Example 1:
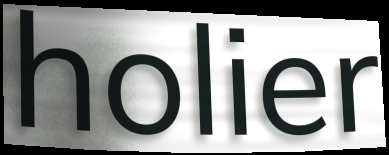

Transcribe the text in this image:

holier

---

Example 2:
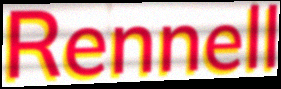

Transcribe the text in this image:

Rennell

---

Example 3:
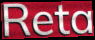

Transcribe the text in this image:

Reta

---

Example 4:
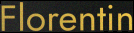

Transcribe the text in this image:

Florentin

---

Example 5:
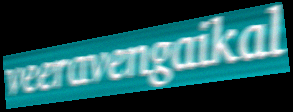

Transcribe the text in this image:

veeravengaikal